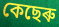
কেছেৰু